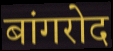
बांगरोद